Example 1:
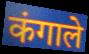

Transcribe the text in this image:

कंगाले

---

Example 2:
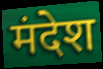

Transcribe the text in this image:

मंदेश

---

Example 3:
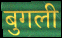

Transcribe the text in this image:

बुगली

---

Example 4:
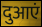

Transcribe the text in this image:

दुआएं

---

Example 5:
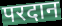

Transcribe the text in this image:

परदान